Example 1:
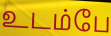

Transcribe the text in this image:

உடம்பே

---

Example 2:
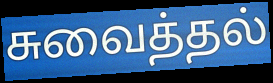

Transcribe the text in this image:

சுவைத்தல்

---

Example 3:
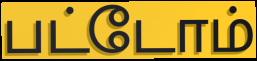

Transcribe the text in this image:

பட்டோம்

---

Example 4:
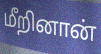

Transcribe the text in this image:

மீறினான்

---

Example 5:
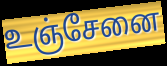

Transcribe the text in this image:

உஞ்சேனை